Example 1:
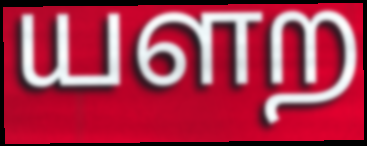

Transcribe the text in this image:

யளற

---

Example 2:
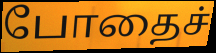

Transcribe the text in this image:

போதைச்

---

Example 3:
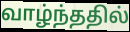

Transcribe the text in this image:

வாழ்ந்ததில்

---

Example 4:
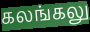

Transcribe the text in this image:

கலங்கலு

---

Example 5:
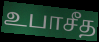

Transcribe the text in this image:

உபாசீத